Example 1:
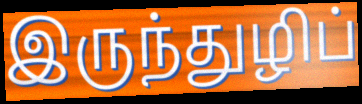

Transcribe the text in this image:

இருந்துழிப்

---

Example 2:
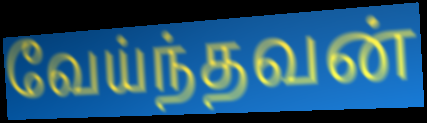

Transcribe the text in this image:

வேய்ந்தவன்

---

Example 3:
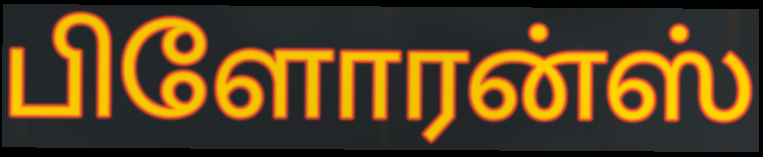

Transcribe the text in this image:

பிளோரன்ஸ்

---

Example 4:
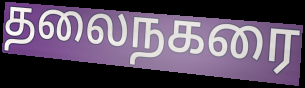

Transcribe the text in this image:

தலைநகரை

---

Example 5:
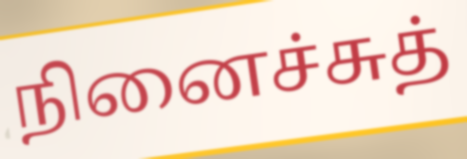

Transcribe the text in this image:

நினைச்சுத்